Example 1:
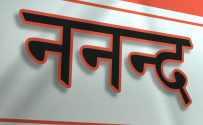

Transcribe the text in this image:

ननन्द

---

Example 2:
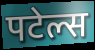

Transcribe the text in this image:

पटेल्स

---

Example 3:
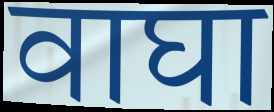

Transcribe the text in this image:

वाघा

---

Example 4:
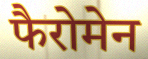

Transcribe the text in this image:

फैरोमेन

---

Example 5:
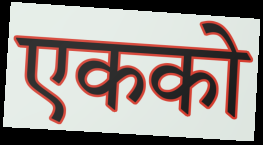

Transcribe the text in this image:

एकको